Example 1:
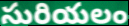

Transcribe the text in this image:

సురియలం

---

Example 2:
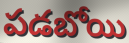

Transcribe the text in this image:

పడబోయి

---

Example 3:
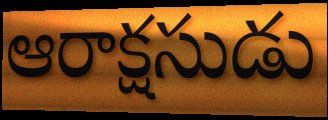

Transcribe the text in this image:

ఆరాక్షసుడు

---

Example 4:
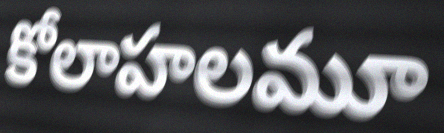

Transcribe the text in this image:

కోలాహలమూ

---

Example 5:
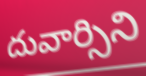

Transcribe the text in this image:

దువార్సిని